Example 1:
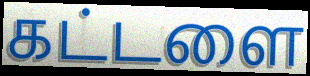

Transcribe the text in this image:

கட்டளை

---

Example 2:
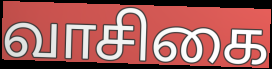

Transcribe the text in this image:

வாசிகை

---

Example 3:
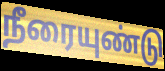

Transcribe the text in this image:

நீரையுண்டு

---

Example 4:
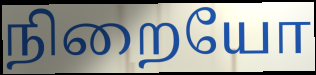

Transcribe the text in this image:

நிறையோ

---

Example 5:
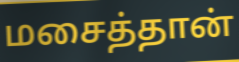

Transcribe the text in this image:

மசைத்தான்